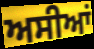
ਅਸੀਆਂ